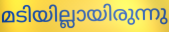
മടിയില്ലായിരുന്നു